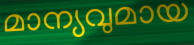
മാന്യവുമായ